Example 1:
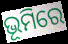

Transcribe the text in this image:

ଭୂମିରେ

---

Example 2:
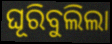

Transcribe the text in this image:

ଘୂରିବୁଲିଲା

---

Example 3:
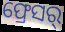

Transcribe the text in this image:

ଫ୍ରେସର୍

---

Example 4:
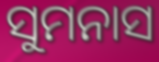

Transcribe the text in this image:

ସୁମନାସ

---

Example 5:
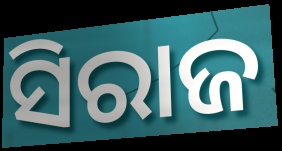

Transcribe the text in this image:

ସିରାଜ